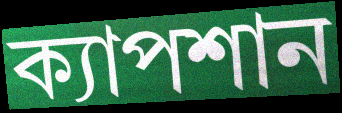
ক্যাপশান